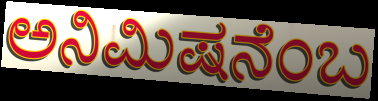
ಅನಿಮಿಷನೆಂಬ